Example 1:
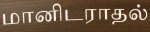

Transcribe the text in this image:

மானிடராதல்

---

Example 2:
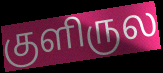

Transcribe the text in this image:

குளிருல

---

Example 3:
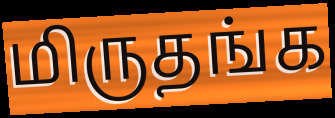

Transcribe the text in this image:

மிருதங்க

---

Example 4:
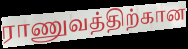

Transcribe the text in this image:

ராணுவத்திற்கான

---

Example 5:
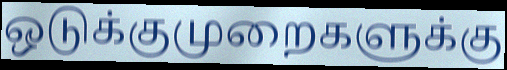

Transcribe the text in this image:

ஒடுக்குமுறைகளுக்கு